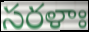
సరళాః